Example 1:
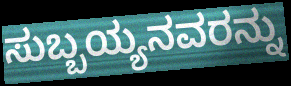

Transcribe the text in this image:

ಸುಬ್ಬಯ್ಯನವರನ್ನು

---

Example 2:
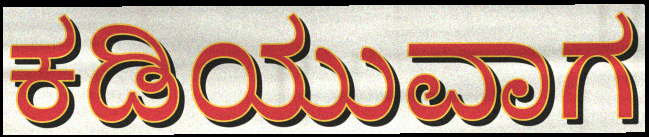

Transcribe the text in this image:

ಕಡಿಯುವಾಗ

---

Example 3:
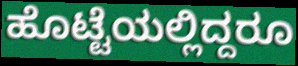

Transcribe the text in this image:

ಹೊಟ್ಟೆಯಲ್ಲಿದ್ದರೂ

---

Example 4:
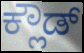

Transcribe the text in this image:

ಕ್ಲೌಡ್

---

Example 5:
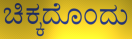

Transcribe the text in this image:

ಚಿಕ್ಕದೊಂದು